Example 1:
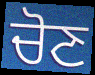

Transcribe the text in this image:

ਚੋਣ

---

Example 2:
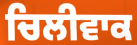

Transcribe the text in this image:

ਚਿਲੀਵਾਕ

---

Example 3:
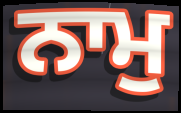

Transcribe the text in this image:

ਨਾਮੁ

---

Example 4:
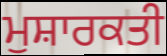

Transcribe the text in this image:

ਮੁਸ਼ਾਰਕਤੀ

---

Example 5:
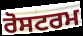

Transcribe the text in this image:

ਰੋਸਟਰਮ